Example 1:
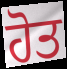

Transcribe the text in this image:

ਹੋਤ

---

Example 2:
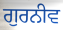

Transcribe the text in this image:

ਗੁਰਨੀਵ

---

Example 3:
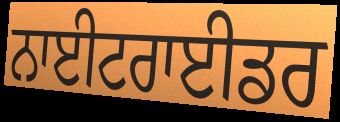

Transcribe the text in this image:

ਨਾਈਟਰਾਈਡਰ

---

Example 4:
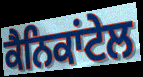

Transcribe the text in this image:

ਕੈਨਿਕਾਂਟੇਲ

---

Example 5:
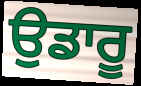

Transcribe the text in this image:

ਉਡਾਰੂ